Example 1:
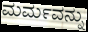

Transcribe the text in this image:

ಮರ್ಮವನ್ನು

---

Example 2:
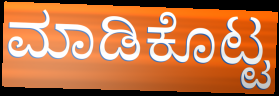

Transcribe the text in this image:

ಮಾಡಿಕೊಟ್ಟ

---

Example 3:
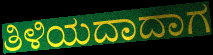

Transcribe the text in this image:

ತಿಳಿಯದಾದಾಗ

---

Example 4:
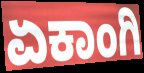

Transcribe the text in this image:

ಏಕಾಂಗಿ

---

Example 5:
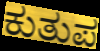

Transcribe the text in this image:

ಕುತುಪ